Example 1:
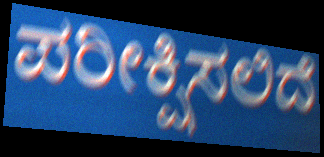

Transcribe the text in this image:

ಪರೀಕ್ಷಿಸಲಿದೆ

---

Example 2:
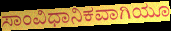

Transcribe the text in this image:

ಸಾಂವಿಧಾನಿಕವಾಗಿಯೂ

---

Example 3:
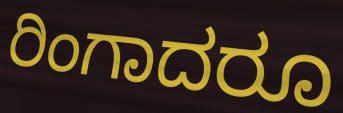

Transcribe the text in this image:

ರಿಂಗಾದರೂ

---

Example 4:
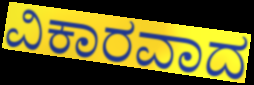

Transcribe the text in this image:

ವಿಕಾರವಾದ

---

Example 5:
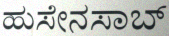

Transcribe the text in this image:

ಹುಸೇನಸಾಬ್